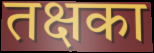
तक्षका